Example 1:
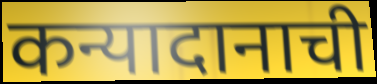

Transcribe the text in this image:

कन्यादानाची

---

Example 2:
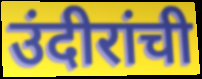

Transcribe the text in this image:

उंदीरांची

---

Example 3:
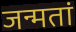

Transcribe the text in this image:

जन्मतां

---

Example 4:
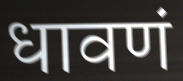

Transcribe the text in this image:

धावणं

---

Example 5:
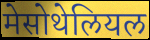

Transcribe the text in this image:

मेसोथेलियल